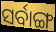
ସର୍ବାଙ୍ଗ